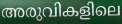
അരുവികളിലെ